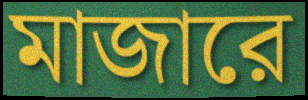
মাজারে